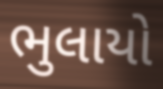
ભુલાયો